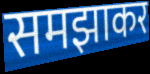
समझाकर